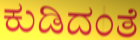
ಕುಡಿದಂತೆ